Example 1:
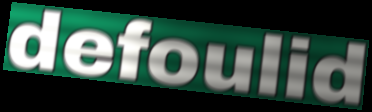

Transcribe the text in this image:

defoulid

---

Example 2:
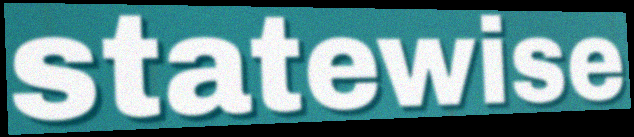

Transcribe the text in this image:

statewise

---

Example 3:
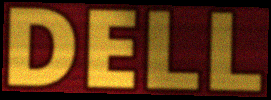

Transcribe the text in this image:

DELL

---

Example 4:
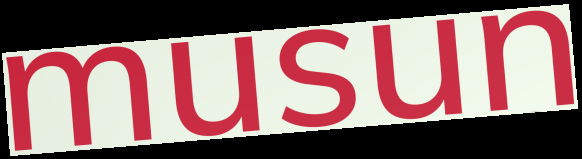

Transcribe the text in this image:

musun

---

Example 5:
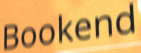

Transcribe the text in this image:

Bookend